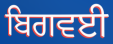
ਬਿਗਵਈ